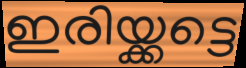
ഇരിയ്ക്കട്ടെ